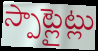
స్పాట్లైట్లు